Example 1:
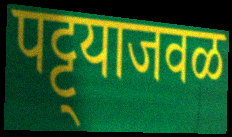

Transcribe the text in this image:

पट्ट्याजवळ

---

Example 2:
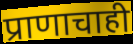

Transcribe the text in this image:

प्राणाचाही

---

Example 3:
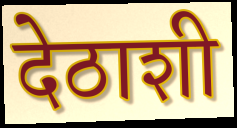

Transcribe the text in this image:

देठाशी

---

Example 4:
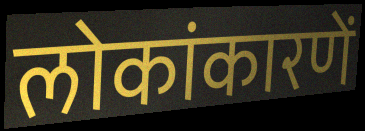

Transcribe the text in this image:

लोकांकारणें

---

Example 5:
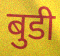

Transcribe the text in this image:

बुडी